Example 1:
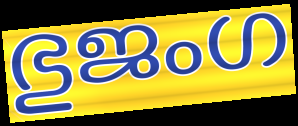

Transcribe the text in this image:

ഭുജംഗ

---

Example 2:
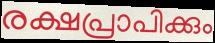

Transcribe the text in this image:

രക്ഷപ്രാപിക്കും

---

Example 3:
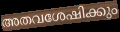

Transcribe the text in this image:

അതവശേഷിക്കും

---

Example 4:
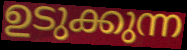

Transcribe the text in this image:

ഉടുക്കുന്ന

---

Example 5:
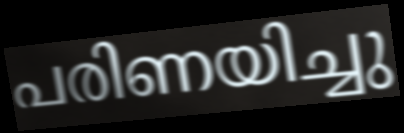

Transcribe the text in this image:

പരിണയിച്ചു